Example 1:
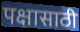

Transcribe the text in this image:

पक्षासाठी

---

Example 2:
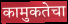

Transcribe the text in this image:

कामुकतेचा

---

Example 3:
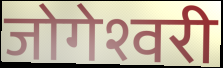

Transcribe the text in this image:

जोगेश्वरी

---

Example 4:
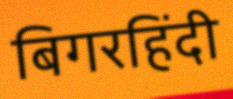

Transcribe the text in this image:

बिगरहिंदी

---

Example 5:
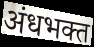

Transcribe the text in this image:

अंधभक्त